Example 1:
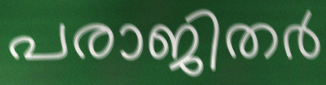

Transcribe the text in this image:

പരാജിതർ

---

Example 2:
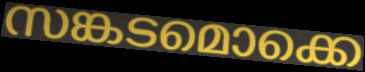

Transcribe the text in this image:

സങ്കടമൊക്കെ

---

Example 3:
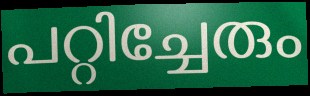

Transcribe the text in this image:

പറ്റിച്ചേരും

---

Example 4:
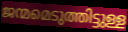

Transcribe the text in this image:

ജന്മമെടുത്തിട്ടുള്ള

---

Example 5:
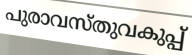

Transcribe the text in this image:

പുരാവസ്തുവകുപ്പ്